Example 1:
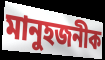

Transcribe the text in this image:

মানুহজনীক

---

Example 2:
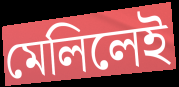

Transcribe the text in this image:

মেলিলেই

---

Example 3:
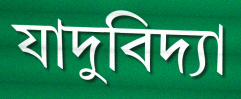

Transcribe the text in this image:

যাদুবিদ্যা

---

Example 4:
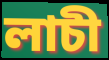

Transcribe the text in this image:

লাচী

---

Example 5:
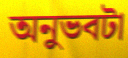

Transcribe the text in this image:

অনুভবটা